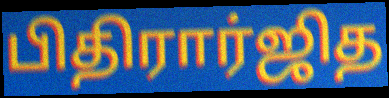
பிதிரார்ஜித